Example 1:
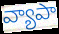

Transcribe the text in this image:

వ్యాపా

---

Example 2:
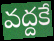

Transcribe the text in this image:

వద్దకే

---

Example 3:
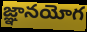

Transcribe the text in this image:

జ్ఞానయోగ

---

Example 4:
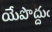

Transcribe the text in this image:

యేపొద్దుఁ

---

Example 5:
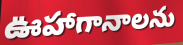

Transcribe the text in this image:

ఊహాగానాలను